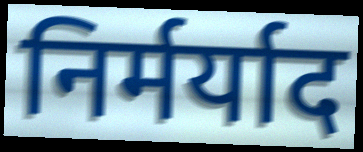
निर्मर्याद